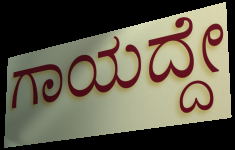
ಗಾಯದ್ದೇ